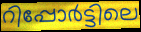
റിപ്പോർട്ടിലെ